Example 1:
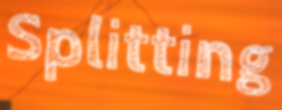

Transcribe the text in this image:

Splitting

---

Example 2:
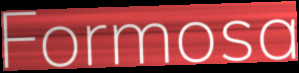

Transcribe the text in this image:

Formosa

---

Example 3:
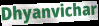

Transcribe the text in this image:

Dhyanvichar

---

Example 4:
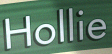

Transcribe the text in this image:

Hollie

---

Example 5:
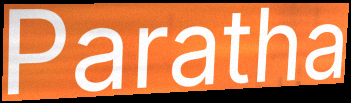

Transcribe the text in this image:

Paratha